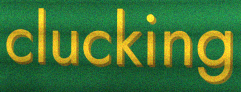
clucking